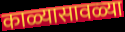
काळ्यासावळ्या